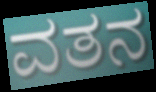
ವತನ